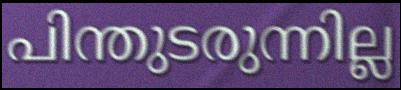
പിന്തുടരുന്നില്ല